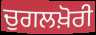
ਚੁਗਲਖ਼ੋਰੀ